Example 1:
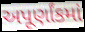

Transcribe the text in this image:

અપૂર્ણાંકમાં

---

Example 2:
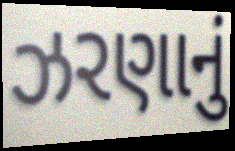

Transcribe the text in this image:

ઝરણાનું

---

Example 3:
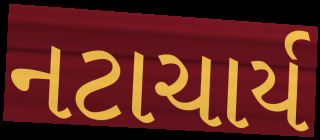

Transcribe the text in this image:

નટાચાર્ય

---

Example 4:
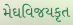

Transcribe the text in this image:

મેઘવિજયકૃત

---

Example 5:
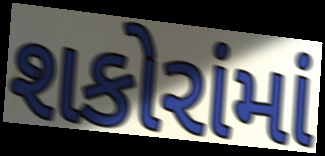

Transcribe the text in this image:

શકોરાંમાં